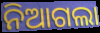
ନିଆଗଲା